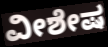
ವೀಶೇಷ